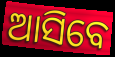
ଆସିବେ